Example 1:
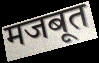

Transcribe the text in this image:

मजबूत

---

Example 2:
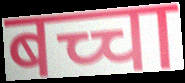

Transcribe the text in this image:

बच्चा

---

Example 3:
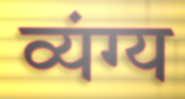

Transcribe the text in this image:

व्‍यंग्‍य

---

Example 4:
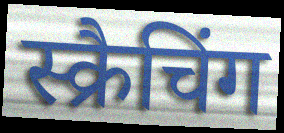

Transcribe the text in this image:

स्क्रैचिंग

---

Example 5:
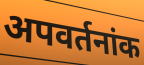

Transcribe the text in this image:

अपवर्तनांक